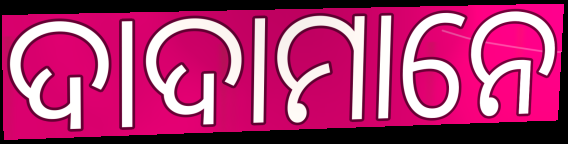
ଦାଦାମାନେ